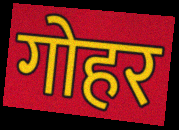
गोहर